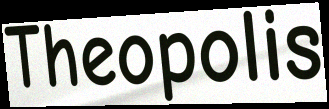
Theopolis